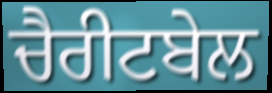
ਚੈਰੀਟਬੇਲ